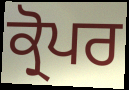
ਕ੍ਰੋਪਰ